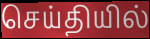
செய்தியில்